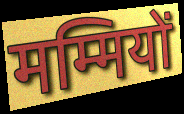
मम्मियों